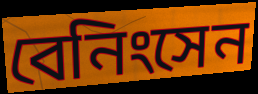
বেনিংসেন